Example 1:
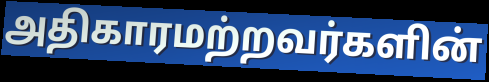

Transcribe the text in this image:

அதிகாரமற்றவர்களின்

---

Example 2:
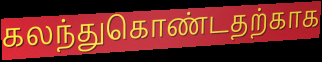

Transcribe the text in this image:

கலந்துகொண்டதற்காக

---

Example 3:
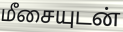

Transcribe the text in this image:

மீசையுடன்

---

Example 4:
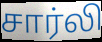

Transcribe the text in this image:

சார்லி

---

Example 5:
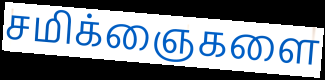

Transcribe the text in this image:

சமிக்ஞைகளை